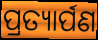
ପ୍ରତ୍ୟାର୍ପଣ